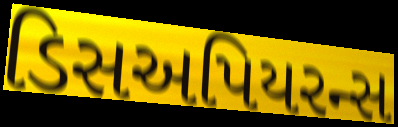
ડિસઅપિયરન્સ